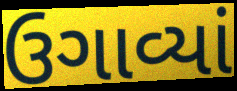
ઉગાવ્યાં